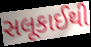
સલૂકાઈથી